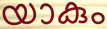
യാകും